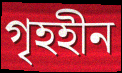
গৃহহীন